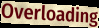
Overloading